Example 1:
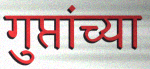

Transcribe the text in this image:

गुप्तांच्या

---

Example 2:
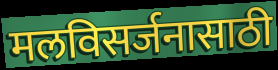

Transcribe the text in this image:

मलविसर्जनासाठी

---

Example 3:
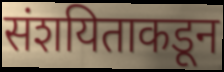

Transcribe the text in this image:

संशयिताकडून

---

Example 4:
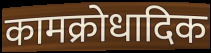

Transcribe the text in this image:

कामक्रोधादिक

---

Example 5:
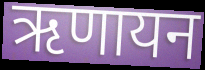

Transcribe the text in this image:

ऋणायन